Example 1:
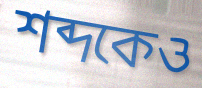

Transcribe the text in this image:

শব্দকেও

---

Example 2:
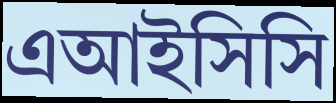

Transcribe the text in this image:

এআইসিসি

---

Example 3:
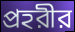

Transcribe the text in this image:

প্রহরীর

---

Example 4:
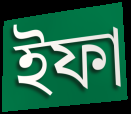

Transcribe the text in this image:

ইফা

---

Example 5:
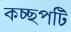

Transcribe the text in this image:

কচ্ছপটি